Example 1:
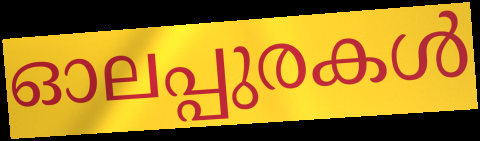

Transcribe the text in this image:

ഓലപ്പുരകൾ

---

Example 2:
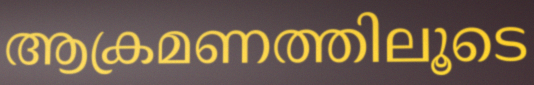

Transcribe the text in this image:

ആക്രമണത്തിലൂടെ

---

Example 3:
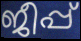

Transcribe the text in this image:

ജീപ്പ്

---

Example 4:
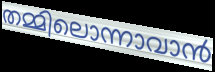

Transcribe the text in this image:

തമ്മിലൊന്നാവാൻ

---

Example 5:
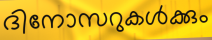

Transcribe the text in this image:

ദിനോസറുകൾക്കും